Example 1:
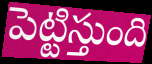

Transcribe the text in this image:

పెట్టిస్తుంది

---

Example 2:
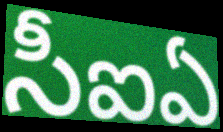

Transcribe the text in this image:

సీఐఏ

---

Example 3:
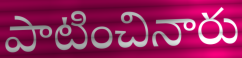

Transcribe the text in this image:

పాటించినారు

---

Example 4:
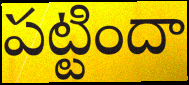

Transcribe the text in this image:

పట్టిందా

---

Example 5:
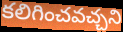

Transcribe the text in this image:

కలిగించవచ్చని